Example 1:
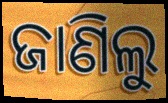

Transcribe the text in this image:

ଜାଣିଲୁ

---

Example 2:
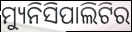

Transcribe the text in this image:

ମ୍ୟୁନିସିପାଲିଟିର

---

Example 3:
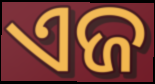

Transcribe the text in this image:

ଏଜ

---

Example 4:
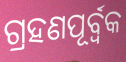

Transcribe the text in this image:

ଗ୍ରହଣପୂର୍ବ୍ବକ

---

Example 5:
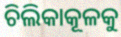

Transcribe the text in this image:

ଚିଲିକାକୂଳକୁ